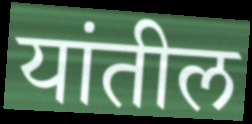
यांतील